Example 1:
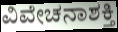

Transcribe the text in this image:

ವಿವೇಚನಾಶಕ್ತಿ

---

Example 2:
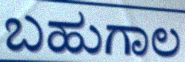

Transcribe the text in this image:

ಬಹುಗಾಲ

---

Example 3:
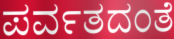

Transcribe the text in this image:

ಪರ್ವತದಂತೆ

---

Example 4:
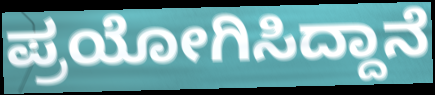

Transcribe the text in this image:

ಪ್ರಯೋಗಿಸಿದ್ದಾನೆ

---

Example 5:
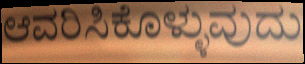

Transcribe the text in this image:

ಆವರಿಸಿಕೊಳ್ಳುವುದು